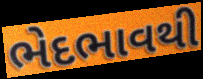
ભેદભાવથી